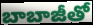
బాబాజీతో